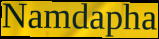
Namdapha